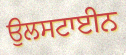
ਉਲਸਟਾਈਨ